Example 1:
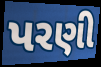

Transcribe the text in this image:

પરણી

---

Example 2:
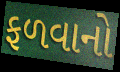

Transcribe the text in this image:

ફળવાનો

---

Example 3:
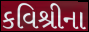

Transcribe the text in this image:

કવિશ્રીના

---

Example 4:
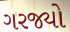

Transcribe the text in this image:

ગરજ્યો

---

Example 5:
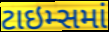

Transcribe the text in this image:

ટાઇમ્સમાં